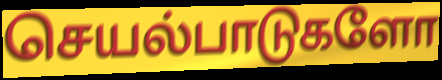
செயல்பாடுகளோ